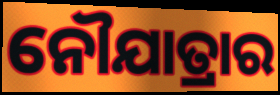
ନୌଯାତ୍ରାର